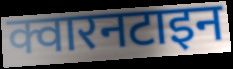
क्वारनटाइन